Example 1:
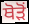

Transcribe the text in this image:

ਥੋੜੋਂ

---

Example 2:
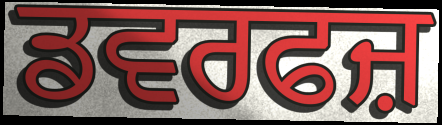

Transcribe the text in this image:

ਡਵਰਫਜ਼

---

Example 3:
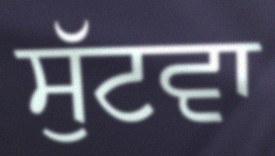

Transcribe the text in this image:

ਸੁੱਟਵਾ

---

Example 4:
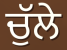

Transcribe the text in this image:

ਚੁੱਲੇ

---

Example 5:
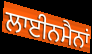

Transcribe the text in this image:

ਲਾਈਨਮੈਨਾਂ